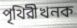
পৃথিৱীখনক